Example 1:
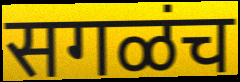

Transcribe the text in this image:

सगळंच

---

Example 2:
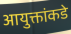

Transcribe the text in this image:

आयुक्तांकडे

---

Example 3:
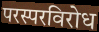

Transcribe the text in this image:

परस्परविरोध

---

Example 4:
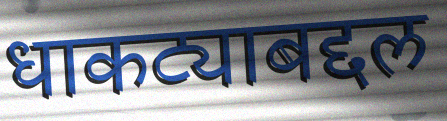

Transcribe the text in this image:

धाकट्याबद्दल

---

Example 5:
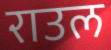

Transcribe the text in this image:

राउल